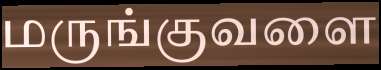
மருங்குவளை